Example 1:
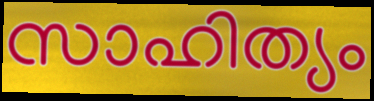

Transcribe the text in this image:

സാഹിത്യം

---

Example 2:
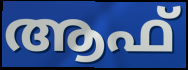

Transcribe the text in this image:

ആഫ്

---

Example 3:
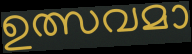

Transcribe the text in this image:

ഉത്സവമാ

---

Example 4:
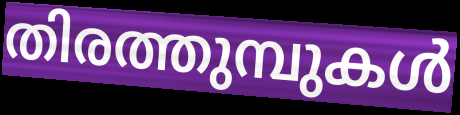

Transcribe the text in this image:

തിരത്തുമ്പുകൾ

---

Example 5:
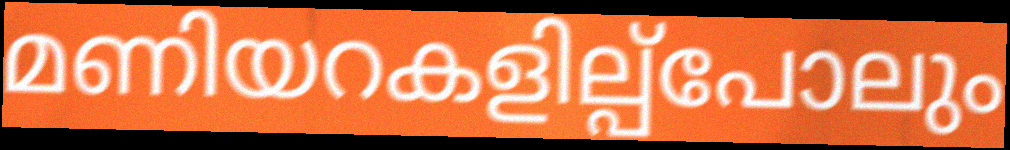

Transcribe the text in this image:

മണിയറകളില്പ്പോലും